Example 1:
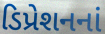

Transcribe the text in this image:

ડિપ્રેશનનાં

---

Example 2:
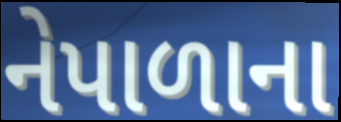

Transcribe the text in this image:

નેપાળાના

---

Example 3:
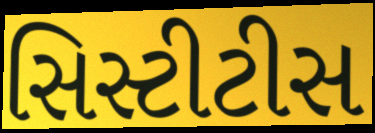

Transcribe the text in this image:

સિસ્ટીટીસ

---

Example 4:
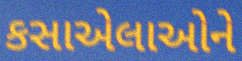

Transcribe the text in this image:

કસાએલાઓને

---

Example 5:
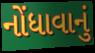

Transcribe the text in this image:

નોંધાવાનું